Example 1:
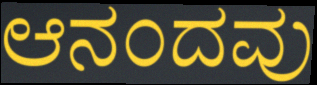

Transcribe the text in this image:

ಆನಂದವು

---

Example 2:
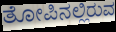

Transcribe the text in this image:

ತೋಪಿನಲ್ಲಿರುವ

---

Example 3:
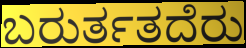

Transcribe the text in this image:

ಬರುರ್ತತದೆರು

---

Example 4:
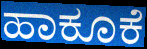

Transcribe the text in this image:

ಹಾಕೂಕೆ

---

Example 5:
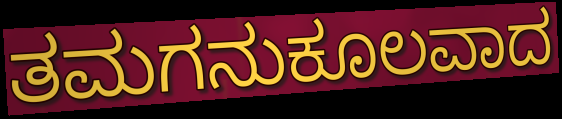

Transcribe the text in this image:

ತಮಗನುಕೂಲವಾದ